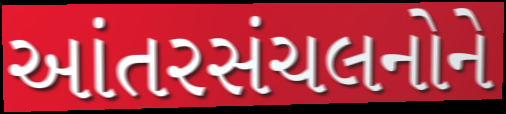
આંતરસંચલનોને